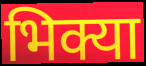
भिक्या